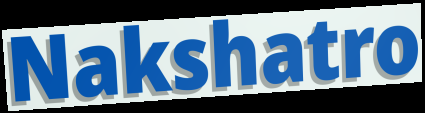
Nakshatro